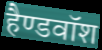
हैण्डवॉश